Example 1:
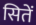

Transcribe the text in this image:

सितें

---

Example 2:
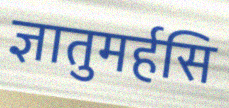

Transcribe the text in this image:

ज्ञातुमर्हसि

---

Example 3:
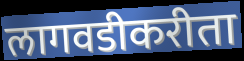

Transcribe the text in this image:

लागवडीकरीता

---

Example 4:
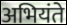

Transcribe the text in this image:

अभियंते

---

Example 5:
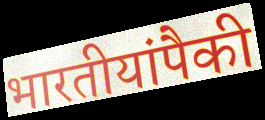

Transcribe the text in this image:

भारतीयांपैकी